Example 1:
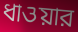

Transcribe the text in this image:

ধাওয়ার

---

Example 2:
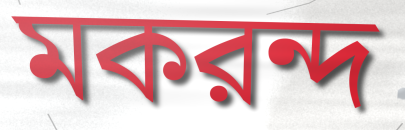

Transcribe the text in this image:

মকরন্দ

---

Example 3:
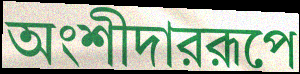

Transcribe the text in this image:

অংশীদাররূপে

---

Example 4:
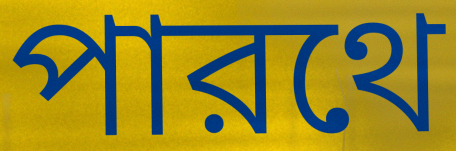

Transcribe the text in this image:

পারথে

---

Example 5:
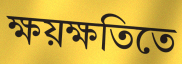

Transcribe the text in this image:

ক্ষয়ক্ষতিতে